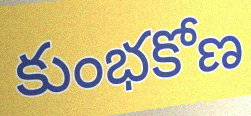
కుంభకోణ